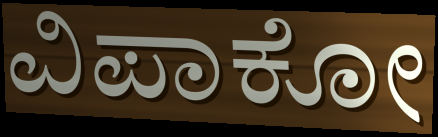
ವಿಪಾಕೋ